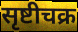
सृष्टीचक्र